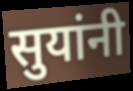
सुयांनी